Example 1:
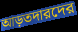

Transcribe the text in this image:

আড়তদারদের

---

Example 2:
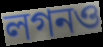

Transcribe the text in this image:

লগনও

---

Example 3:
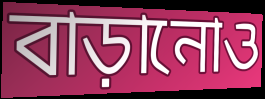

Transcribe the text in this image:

বাড়ানোও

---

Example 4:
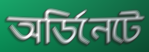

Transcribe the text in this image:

অর্ডিনেটে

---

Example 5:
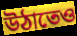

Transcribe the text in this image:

উঠাতেও